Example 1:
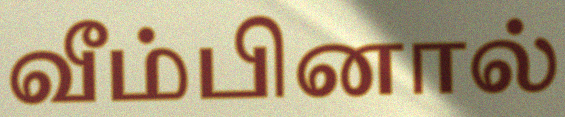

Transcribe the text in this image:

வீம்பினால்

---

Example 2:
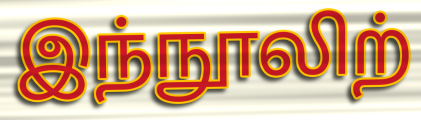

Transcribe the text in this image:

இந்நூலிற்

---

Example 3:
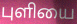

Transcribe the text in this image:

புளியை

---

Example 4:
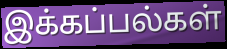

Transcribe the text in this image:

இக்கப்பல்கள்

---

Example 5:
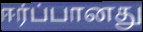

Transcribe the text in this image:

ஈர்ப்பானது